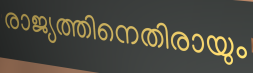
രാജ്യത്തിനെതിരായും